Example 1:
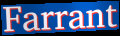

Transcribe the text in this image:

Farrant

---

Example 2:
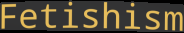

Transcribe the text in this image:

Fetishism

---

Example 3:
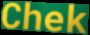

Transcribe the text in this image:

Chek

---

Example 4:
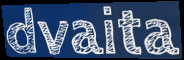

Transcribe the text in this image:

dvaita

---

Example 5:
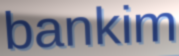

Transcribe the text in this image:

bankim